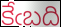
కేఁబది